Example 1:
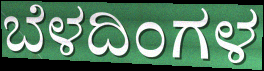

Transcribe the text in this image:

ಬೆಳದಿಂಗಳ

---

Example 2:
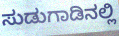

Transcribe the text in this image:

ಸುಡುಗಾಡಿನಲ್ಲಿ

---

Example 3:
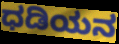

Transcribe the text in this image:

ಧಡಿಯನ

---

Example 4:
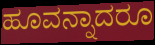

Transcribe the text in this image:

ಹೂವನ್ನಾದರೂ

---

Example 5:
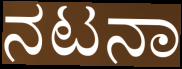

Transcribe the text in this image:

ನಟನಾ